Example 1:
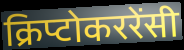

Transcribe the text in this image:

क्रिप्टोकररेंसी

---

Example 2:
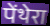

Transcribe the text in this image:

पेंथेरा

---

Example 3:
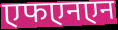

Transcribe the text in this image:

एफएनएन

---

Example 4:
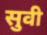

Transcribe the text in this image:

सुवी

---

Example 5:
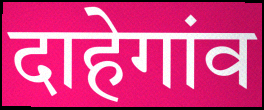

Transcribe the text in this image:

दाहेगांव